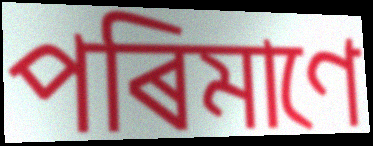
পৰিমাণে